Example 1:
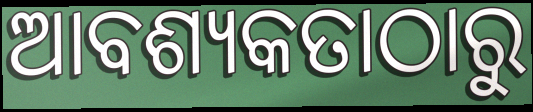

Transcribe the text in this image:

ଆବଶ୍ୟକତାଠାରୁ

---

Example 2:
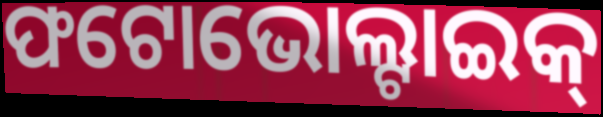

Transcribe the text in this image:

ଫଟୋଭୋଲ୍ଟାଇକ୍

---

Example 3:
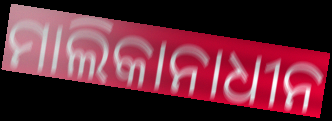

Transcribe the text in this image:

ମାଲିକାନାଧୀନ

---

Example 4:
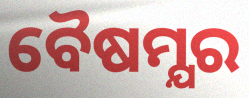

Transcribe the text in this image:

ବୈଷମ୍ଯର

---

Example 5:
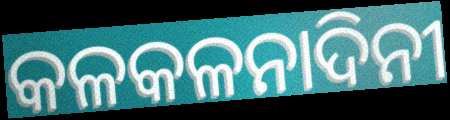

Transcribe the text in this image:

କଳକଳନାଦିନୀ